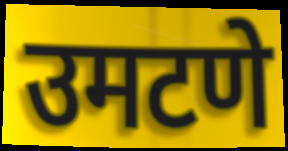
उमटणे